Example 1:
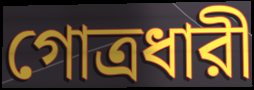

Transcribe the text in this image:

গোত্রধারী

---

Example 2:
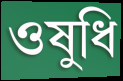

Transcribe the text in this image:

ওষুধি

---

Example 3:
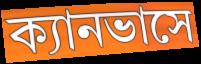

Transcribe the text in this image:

ক্যানভাসে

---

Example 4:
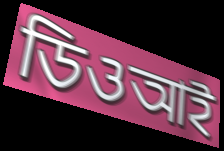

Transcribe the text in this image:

ডিওআই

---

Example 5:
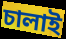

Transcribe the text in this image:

চালাই